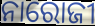
ନାରୋଜୀ